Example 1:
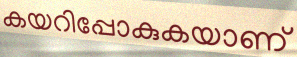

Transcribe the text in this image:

കയറിപ്പോകുകയാണ്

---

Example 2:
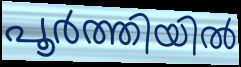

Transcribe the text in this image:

പൂർത്തിയിൽ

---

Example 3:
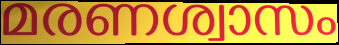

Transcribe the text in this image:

മരണശ്വാസം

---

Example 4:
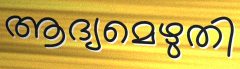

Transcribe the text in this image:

ആദ്യമെഴുതി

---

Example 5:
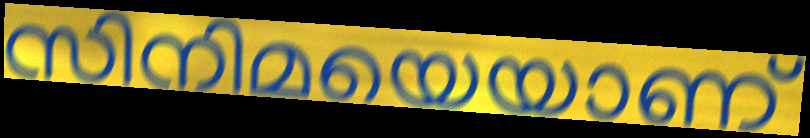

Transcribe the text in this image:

സിനിമയെയാണ്